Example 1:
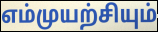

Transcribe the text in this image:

எம்முயற்சியும்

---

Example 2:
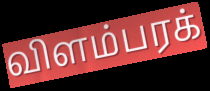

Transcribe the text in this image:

விளம்பரக்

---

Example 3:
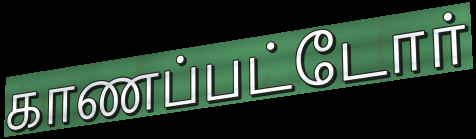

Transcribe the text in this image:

காணப்பட்டோர்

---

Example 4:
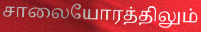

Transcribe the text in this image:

சாலையோரத்திலும்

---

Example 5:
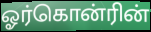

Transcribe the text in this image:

ஓர்கொன்ரின்